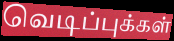
வெடிப்புக்கள்